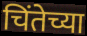
चिंतेच्या